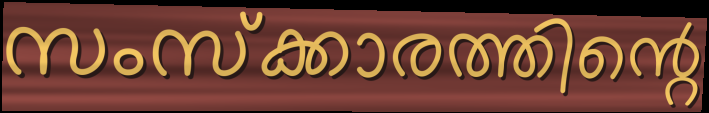
സംസ്ക്കാരത്തിന്റെ